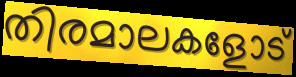
തിരമാലകളോട്